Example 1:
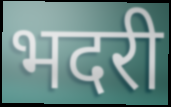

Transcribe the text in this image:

भदरी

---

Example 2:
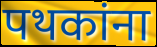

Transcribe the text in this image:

पथकांना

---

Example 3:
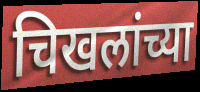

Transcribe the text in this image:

चिखलांच्या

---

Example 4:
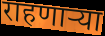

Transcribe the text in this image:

राहणाऱ्या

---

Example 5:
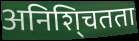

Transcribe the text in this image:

अनिश्‍चितता